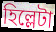
হিল্লেটা